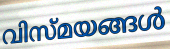
വിസ്മയങ്ങൾ